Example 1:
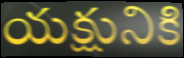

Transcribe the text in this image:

యక్షునికి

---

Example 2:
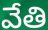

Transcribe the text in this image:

వేతి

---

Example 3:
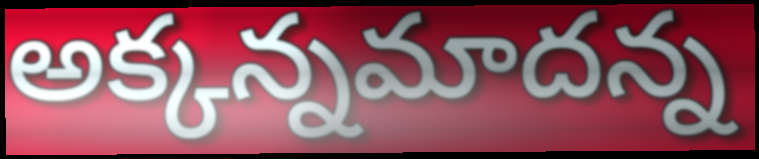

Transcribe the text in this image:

అక్కన్నమాదన్న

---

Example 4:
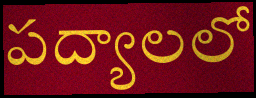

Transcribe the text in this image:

పద్యాలలో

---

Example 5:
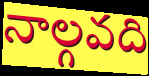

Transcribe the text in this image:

నాల్గవది